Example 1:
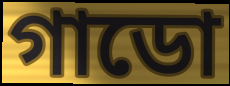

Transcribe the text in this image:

গাডো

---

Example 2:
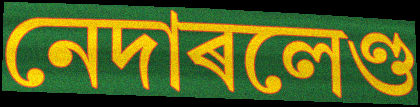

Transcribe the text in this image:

নেদাৰলেণ্ড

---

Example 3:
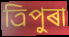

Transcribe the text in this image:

ত্ৰিপুৰা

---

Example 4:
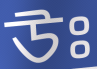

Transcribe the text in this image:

উঃ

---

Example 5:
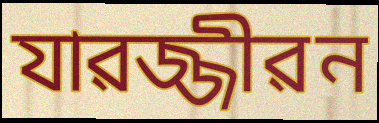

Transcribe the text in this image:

যাৱজ্জীৱন